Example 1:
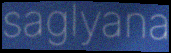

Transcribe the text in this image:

saglyana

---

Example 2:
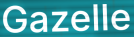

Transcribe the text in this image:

Gazelle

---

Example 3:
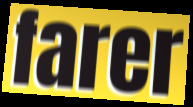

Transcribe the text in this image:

farer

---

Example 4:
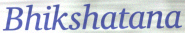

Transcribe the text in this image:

Bhikshatana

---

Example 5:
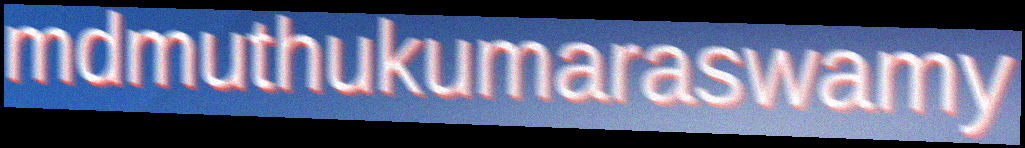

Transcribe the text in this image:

mdmuthukumaraswamy